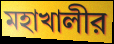
মহাখালীর